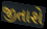
જીતાશે